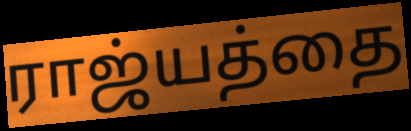
ராஜ்யத்தை